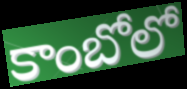
కాంబోలో